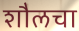
शौलचा